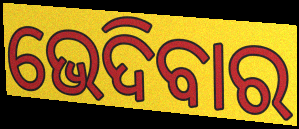
ଭେଦିବାର